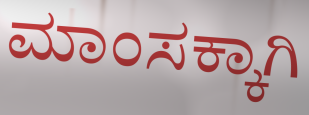
ಮಾಂಸಕ್ಕಾಗಿ